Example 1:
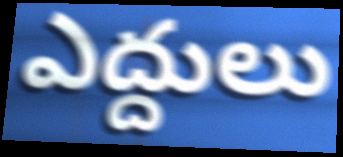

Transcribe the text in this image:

ఎద్దులు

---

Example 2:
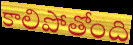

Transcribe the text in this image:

కాలిపోతోంది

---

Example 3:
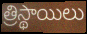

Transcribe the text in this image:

త్రిస్థాయిలు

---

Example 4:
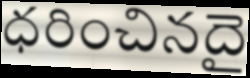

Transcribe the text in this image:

ధరించినదై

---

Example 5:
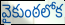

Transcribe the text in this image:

వైకుంఠలోక